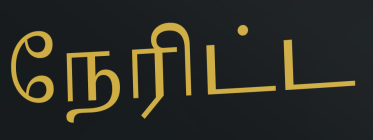
நேரிட்ட